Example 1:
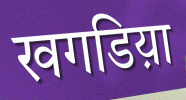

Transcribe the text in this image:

खगडिय़ा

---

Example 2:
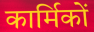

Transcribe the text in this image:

कार्मिकों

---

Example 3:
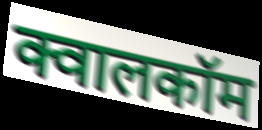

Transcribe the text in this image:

क्वालकॉम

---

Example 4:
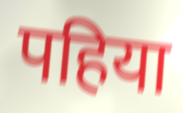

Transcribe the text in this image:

पहिया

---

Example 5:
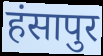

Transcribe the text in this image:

हंसापुर